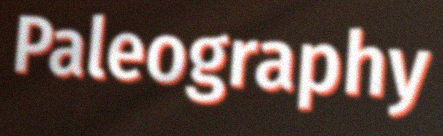
Paleography